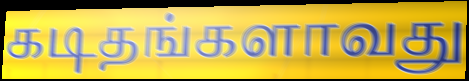
கடிதங்களாவது